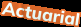
Actuarial